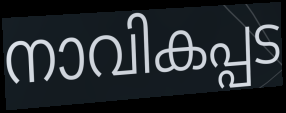
നാവികപ്പട